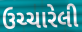
ઉચ્ચારેલી